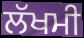
ਲੱਖਮੀ